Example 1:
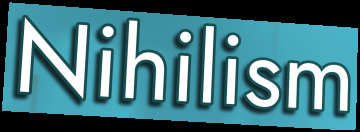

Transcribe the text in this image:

Nihilism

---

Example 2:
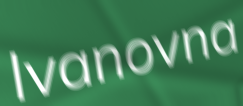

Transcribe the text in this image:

Ivanovna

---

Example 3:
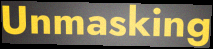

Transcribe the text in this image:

Unmasking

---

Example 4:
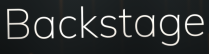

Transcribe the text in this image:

Backstage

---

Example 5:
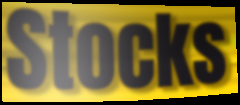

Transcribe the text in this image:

Stocks